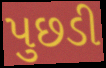
પુછડી